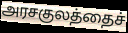
அரசகுலத்தைச்